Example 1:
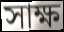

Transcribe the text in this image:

সাক্ষ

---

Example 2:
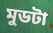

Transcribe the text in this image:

মুডটা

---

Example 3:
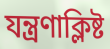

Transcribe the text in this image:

যন্ত্রণাক্লিষ্ট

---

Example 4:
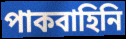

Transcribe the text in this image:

পাকবাহিনি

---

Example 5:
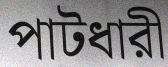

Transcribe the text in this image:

পাটধারী